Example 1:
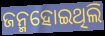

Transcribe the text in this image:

ଜନ୍ମହୋଇଥିଲି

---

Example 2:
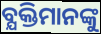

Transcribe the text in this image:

ବ୍ଯକ୍ତିମାନଙ୍କୁ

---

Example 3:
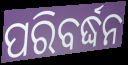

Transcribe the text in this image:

ପରିବର୍ଦ୍ଧନ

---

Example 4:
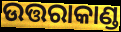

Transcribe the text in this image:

ଉତ୍ତରାକାଣ୍ଡ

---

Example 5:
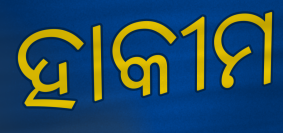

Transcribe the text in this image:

ହାକୀମ